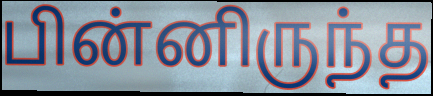
பின்னிருந்த